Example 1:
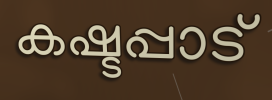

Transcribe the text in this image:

കഷ്ടപ്പാട്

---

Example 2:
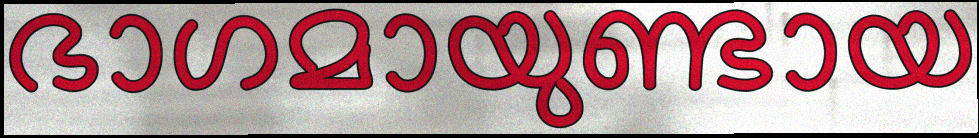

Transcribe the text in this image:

ഭാഗമായുണ്ടായ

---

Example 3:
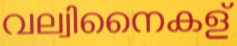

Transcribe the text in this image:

വല്വിനൈകള്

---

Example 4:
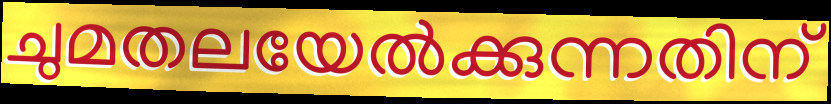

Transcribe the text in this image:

ചുമതലയേൽക്കുന്നതിന്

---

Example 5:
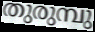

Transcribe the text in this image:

തുരുമ്പു